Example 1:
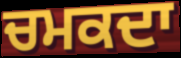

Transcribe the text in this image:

ਚਮਕਦਾ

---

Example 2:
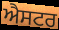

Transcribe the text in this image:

ਐਸਟਰ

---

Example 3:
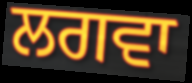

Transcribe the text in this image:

ਲਗਵਾ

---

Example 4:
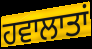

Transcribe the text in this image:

ਹਵਾਲਾਤਾਂ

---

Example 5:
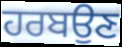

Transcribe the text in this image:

ਹਰਬਉਣ